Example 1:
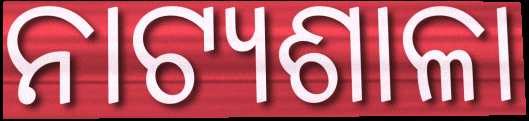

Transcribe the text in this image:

ନାଟ୍ୟଶାଳା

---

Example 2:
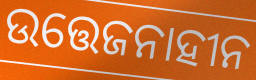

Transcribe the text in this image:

ଉତ୍ତେଜନାହୀନ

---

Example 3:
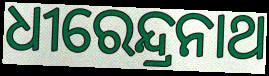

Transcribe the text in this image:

ଧୀରେନ୍ଦ୍ରନାଥ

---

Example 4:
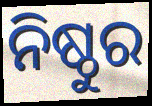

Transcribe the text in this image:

ନିଷ୍ଠୁର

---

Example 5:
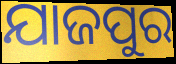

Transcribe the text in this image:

ଯାଜପୁର